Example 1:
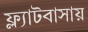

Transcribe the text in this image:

ফ্ল্যাটবাসায়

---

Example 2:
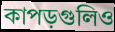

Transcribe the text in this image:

কাপড়গুলিও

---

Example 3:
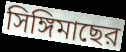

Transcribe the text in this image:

সিঙ্গিমাছের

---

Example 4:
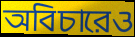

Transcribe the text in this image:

অবিচারেও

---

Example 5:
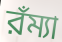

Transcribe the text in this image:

রঁম্যা